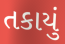
તકાયું